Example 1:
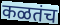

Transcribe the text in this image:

कळतंच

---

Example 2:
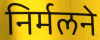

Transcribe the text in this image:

निर्मलने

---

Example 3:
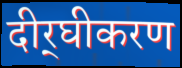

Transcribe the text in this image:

दीर्घीकरण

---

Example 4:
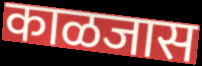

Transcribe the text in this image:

काळजास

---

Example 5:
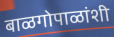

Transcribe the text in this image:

बाळगोपाळांशी